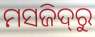
ମସଜିଦ୍‌ରୁ